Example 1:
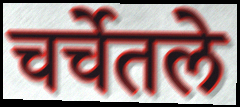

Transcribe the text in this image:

चर्चेतले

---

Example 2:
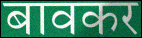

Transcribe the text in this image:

बावकर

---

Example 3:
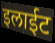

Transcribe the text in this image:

इलाईट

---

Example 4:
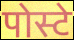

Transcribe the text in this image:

पोस्टे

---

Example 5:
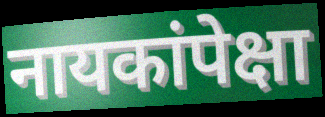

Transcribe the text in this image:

नायकांपेक्षा